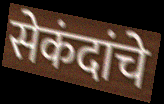
सेकंदांचे